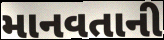
માનવતાની